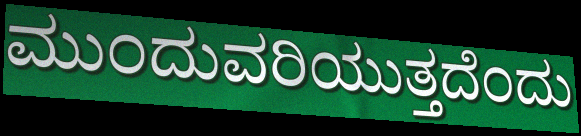
ಮುಂದುವರಿಯುತ್ತದೆಂದು